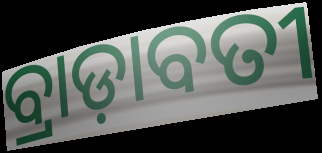
ବ୍ରାଡ଼ାବତୀ